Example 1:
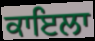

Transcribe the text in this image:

ਕਾਇਲਾ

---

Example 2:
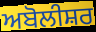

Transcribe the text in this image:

ਅਬੋਲੀਸ਼ਰ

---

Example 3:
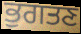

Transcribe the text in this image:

ਭੁਗਤਣ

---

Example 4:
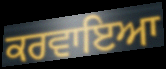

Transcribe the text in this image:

ਕਰਵਾਇਆ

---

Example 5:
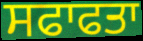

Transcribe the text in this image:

ਸਫਾਫਤਾ